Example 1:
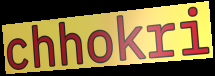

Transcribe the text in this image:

chhokri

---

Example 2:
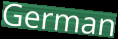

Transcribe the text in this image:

German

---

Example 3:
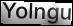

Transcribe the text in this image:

Yolngu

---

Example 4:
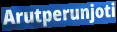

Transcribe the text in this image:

Arutperunjoti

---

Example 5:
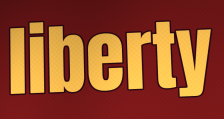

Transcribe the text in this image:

liberty